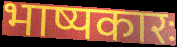
भाष्यकारः